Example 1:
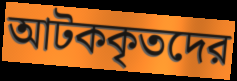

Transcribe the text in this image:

আটককৃতদের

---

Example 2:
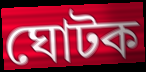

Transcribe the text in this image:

ঘোটক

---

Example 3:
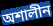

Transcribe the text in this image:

অশালীন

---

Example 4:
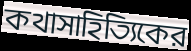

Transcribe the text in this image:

কথাসাহিত্যিকের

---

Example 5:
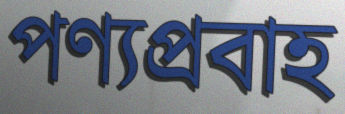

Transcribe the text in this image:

পণ্যপ্রবাহ